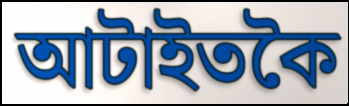
আটাইতকৈ